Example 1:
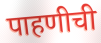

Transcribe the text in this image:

पाहणीची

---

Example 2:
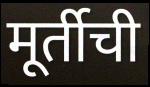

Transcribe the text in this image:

मूर्तीची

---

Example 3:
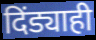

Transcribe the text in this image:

दिंड्याही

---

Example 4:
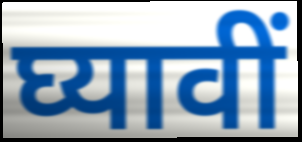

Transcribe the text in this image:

घ्यावीं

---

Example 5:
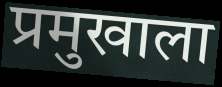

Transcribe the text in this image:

प्रमुखाला